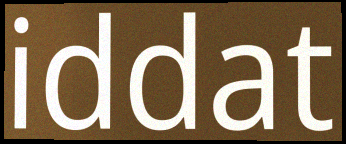
iddat